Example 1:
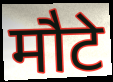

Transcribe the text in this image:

मौटे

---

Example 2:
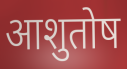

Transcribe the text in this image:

आशुतोष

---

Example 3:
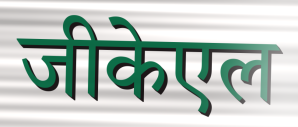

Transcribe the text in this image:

जीकेएल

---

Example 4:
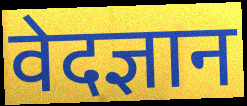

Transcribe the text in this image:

वेदज्ञान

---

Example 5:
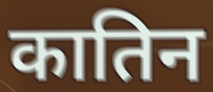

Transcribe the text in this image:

कातिन